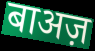
बाअज़